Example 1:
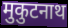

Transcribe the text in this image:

मुकुटनाथ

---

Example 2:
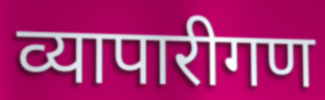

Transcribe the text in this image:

व्यापारीगण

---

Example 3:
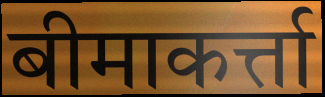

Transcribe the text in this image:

बीमाकर्त्ता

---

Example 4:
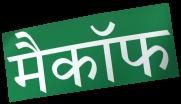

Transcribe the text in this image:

मैकॉफ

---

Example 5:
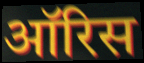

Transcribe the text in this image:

ऑरिस